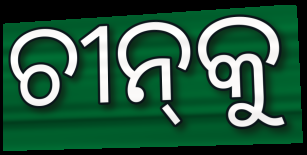
ଚୀନ୍‌କୁ